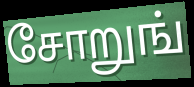
சோறுங்